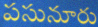
పసునూరు